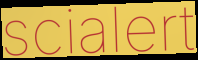
scialert